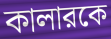
কালারকে